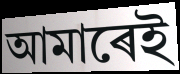
আমাৰেই